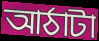
আঠাটা